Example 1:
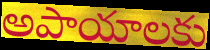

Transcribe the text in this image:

అపాయాలకు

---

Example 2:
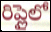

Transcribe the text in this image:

రిప్లైలో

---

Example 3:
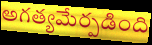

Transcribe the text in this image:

అగత్యమేర్పడింది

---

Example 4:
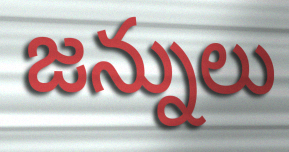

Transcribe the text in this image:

జన్నులు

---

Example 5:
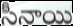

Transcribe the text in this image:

సీనాయి